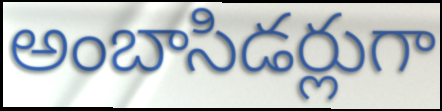
అంబాసిడర్లుగా